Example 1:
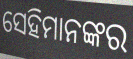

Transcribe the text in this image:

ସେହିମାନଙ୍କର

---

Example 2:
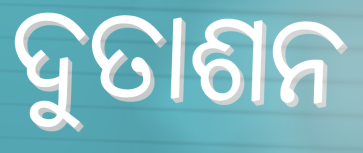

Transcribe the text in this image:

ଦୁତାଶନ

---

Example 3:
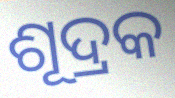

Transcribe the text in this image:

ଶୂଦ୍ରକ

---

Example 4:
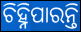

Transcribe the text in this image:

ଚିହ୍ନିପାରନ୍ତି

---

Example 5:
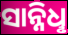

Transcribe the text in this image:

ସାନ୍ନିଧୢ